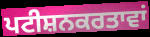
ਪਟੀਸ਼ਨਕਰਤਾਵਾਂ